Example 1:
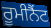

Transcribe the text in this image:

ਰੂਮੀਨੈਂਟ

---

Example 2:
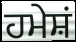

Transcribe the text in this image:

ਹਮੇਸ਼ਂ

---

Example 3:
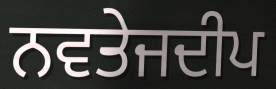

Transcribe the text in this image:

ਨਵਤੇਜਦੀਪ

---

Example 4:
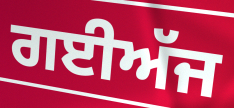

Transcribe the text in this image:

ਗਈਅੱਜ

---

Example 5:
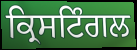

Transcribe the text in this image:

ਕ੍ਰਿਸਟਿੰਗਲ